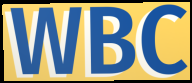
WBC